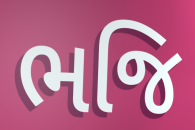
ભજિ